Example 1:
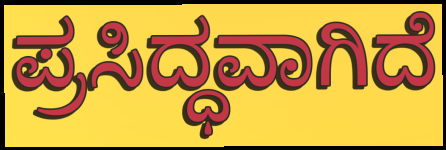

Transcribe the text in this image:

ಪ್ರಸಿದ್ಧವಾಗಿದೆ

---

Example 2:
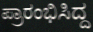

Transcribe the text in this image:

ಪ್ರಾರಂಭಿಸಿದ್ದ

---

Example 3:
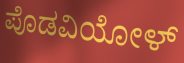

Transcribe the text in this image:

ಪೊಡವಿಯೋಳ್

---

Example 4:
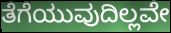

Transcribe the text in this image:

ತೆಗೆಯುವುದಿಲ್ಲವೇ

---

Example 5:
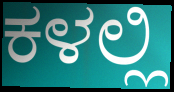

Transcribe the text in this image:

ಕಳಲ್ಲಿ